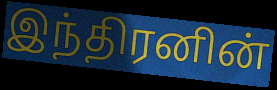
இந்திரனின்